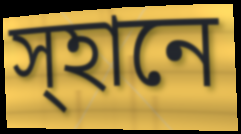
স্হানে